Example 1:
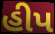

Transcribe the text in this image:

હીપ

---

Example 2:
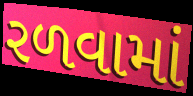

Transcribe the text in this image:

રળવામાં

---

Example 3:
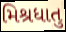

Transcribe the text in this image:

મિશ્રધાતુ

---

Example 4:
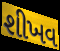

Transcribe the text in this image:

શીખવ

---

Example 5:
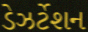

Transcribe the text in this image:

ડેઝર્ટેશન